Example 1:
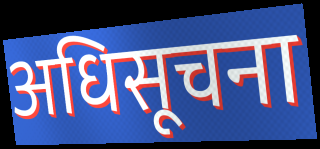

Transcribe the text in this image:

अधिसूचना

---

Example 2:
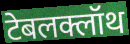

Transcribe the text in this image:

टेबलक्लॉथ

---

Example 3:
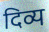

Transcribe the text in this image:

दिव्य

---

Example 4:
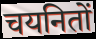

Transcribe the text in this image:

चयनितों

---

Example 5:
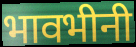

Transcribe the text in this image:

भावभीनी